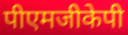
पीएमजीकेपी